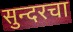
सुन्दरचा